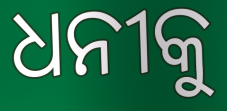
ଧନୀକୁ